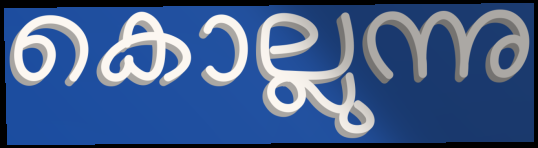
കൊല്ലുന്നു